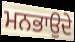
ਮਨਭਾਉਦੇ